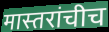
मास्तरांचीच